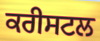
ਕਰੀਸਟਲ